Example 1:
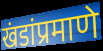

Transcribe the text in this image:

खंडांप्रमाणे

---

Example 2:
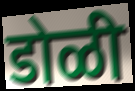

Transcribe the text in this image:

डोळी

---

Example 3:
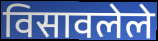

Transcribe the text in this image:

विसावलेले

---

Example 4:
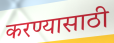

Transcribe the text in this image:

करण्‍यासाठी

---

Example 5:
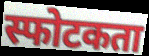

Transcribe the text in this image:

स्फोटकता